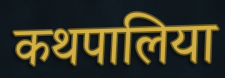
कथपालिया